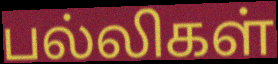
பல்லிகள்